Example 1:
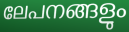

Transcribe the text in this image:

ലേപനങ്ങളും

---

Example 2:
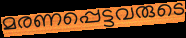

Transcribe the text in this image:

മരണപ്പെട്ടവരുടെ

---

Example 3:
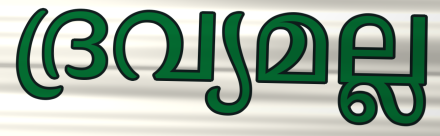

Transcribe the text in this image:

ദ്രവ്യമല്ല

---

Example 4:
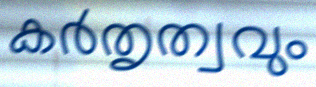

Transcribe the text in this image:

കർതൃത്വവും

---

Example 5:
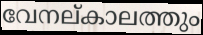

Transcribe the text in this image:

വേനല്കാലത്തും